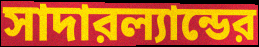
সাদারল্যান্ডের